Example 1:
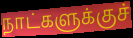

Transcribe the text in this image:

நாட்களுக்குச்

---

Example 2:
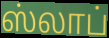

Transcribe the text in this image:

ஸ்லாப்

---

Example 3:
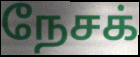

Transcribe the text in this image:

நேசக்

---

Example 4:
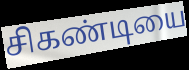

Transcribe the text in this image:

சிகண்டியை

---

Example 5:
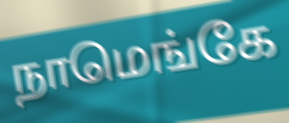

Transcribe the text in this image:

நாமெங்கே